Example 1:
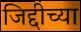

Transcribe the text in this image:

जिद्दीच्या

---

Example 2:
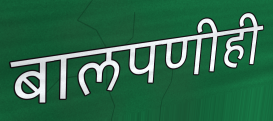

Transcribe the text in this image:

बालपणीही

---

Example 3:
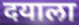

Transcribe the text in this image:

दयाला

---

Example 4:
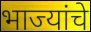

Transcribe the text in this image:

भाज्यांचे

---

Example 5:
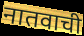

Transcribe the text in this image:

नातवाची